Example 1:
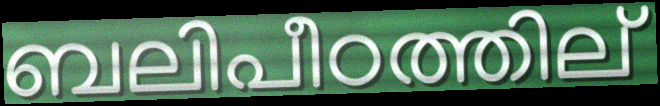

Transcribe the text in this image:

ബലിപീഠത്തില്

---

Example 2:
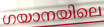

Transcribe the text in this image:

ഗയാനയിലെ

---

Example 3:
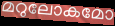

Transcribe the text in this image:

മറുലോകമോ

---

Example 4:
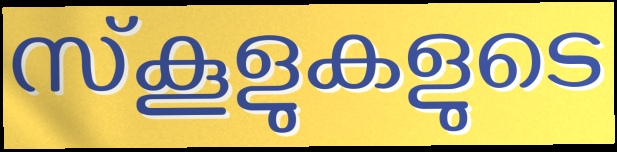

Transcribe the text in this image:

സ്‌കൂളുകളുടെ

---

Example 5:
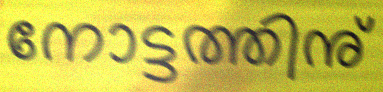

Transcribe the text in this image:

നോട്ടത്തിനു്